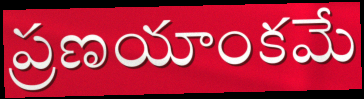
ప్రణయాంకమే